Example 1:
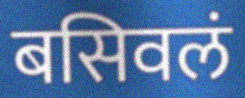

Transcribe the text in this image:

बसिवलं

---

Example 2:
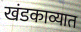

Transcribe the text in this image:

खंडकाव्यात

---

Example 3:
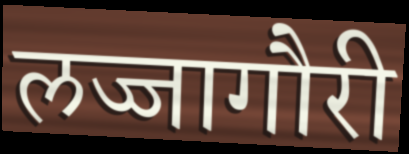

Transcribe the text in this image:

लज्जागौरी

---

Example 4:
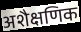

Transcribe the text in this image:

अशैक्षणिक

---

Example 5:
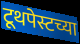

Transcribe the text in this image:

टूथपेस्टच्या